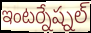
ఇంటర్నేష్నల్